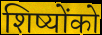
शिष्योंको